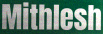
Mithlesh